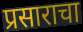
प्रसाराचा